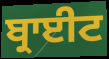
ਬ੍ਰਾਈਟ